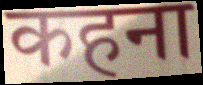
कहना